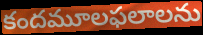
కందమూలఫలాలను